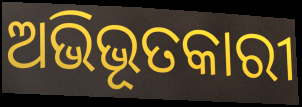
ଅଭିଭୂତକାରୀ